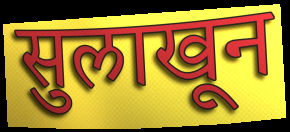
सुलाखून